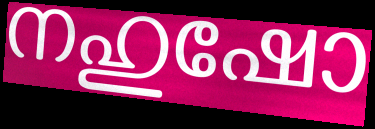
നഹുഷോ